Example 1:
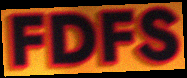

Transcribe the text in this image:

FDFS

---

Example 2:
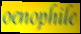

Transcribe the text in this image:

oenophile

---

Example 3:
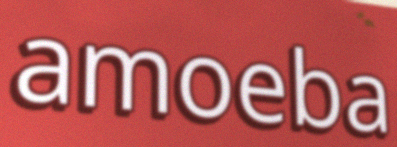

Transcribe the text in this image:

amoeba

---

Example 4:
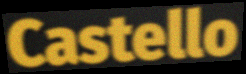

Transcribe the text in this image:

Castello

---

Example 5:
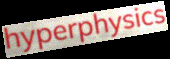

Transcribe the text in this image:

hyperphysics